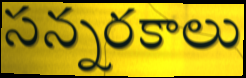
సన్నరకాలు